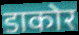
डाकोर